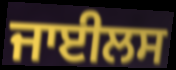
ਜਾਈਲਸ